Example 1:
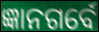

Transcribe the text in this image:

ଜ୍ଞାନଗର୍ବେ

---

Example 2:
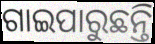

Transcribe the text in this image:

ଗାଇପାରୁଛନ୍ତି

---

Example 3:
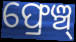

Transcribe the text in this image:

ଫ୍ରେଞ୍ଚ୍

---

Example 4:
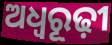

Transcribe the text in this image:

ଅଧ୍ଵରୂଢ଼ୀ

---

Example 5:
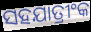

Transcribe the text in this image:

ସହଯାତ୍ରୀଂକ